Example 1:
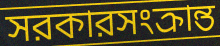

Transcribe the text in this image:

সরকারসংক্রান্ত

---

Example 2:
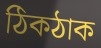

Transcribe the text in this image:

ঠিকঠাক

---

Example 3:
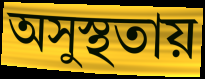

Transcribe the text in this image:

অসুস্থতায়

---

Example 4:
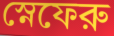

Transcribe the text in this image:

স্নেফেরু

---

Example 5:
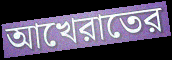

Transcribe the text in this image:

আখেরাতের